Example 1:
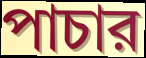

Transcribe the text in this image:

পাচার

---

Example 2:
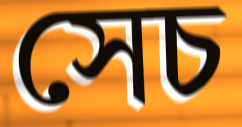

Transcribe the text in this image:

সেচ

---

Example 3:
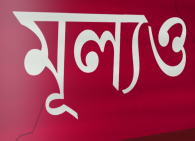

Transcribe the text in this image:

মূল্যও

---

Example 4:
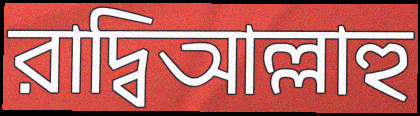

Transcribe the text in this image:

রাদ্বিআল্লাহু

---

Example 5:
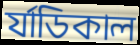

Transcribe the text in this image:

র্যাডিকাল